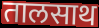
तालसाथ